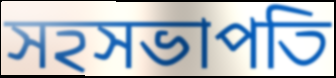
সহসভাপতি